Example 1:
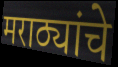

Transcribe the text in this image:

मराठ्यांचे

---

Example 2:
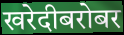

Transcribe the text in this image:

खरेदीबरोबर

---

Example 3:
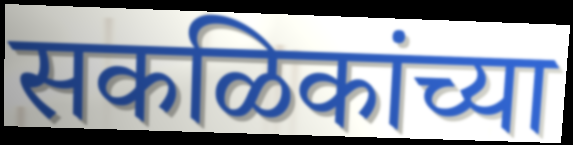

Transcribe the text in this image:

सकळिकांच्या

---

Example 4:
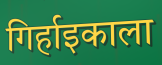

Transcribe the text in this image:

गिर्हाइकाला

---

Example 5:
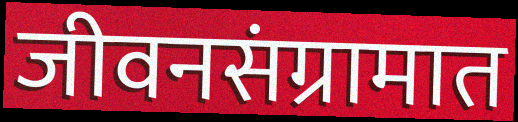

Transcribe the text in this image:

जीवनसंग्रामात